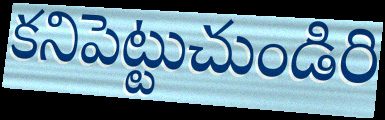
కనిపెట్టుచుండిరి